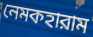
নেমকহারাম